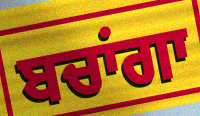
ਬਚਾਂਗਾ